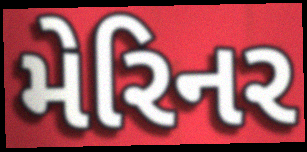
મેરિનર